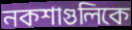
নকশাগুলিকে